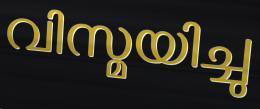
വിസ്മയിച്ചു